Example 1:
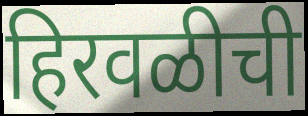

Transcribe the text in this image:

हिरवळीची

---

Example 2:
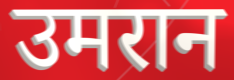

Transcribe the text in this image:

उमरान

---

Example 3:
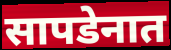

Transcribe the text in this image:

सापडेनात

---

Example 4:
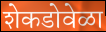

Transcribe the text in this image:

शेकडोवेळा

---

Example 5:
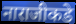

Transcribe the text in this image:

नाराजीकडे